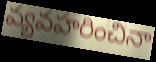
వ్యవహరించినా